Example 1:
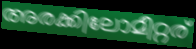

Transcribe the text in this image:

അരക്കിലോമീറ്റര്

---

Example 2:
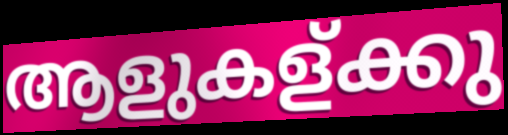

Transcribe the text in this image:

ആളുകള്ക്കു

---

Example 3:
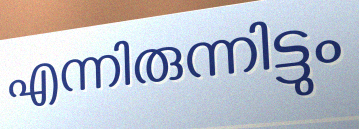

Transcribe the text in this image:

എന്നിരുന്നിട്ടും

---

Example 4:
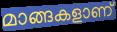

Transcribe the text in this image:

മാങ്ങകളാണ്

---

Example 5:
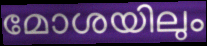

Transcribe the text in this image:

മോശയിലും